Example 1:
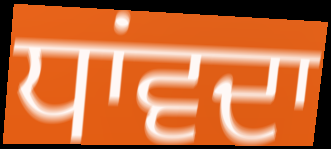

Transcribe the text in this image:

ਧਾਂਵਦਾ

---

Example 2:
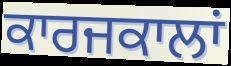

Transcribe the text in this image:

ਕਾਰਜਕਾਲਾਂ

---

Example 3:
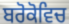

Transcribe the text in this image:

ਬਰੋਕੋਵਿਚ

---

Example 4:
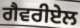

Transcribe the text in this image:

ਗੈਵਰੀਏਲ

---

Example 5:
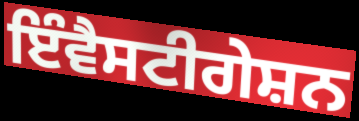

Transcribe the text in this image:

ਇੰਵੈਸਟੀਗੇਸ਼ਨ